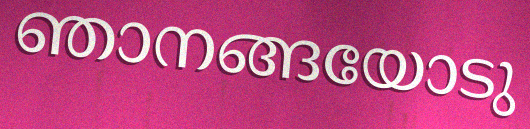
ഞാനങ്ങയോടു